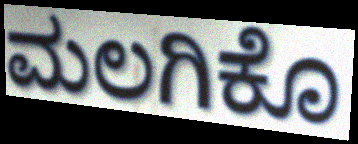
ಮಲಗಿಕೊ